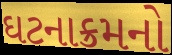
ઘટનાક્રમનો